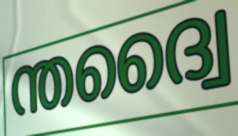
ന്തദ്വൈ